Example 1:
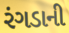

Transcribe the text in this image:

રંગડાની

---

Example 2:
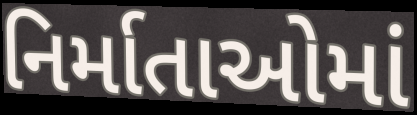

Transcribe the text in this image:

નિર્માતાઓમાં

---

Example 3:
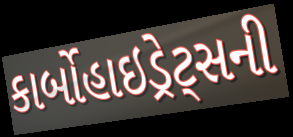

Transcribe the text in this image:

કાર્બોહાઇડ્રેટ્સની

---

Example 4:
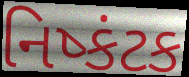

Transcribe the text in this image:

નિષ્કંટક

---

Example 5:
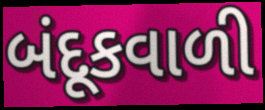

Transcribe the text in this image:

બંદૂકવાળી